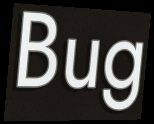
Bug